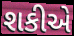
શકીએ